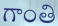
గాంతి